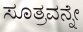
ಸೂತ್ರವನ್ನೇ